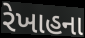
રેખાહના